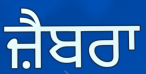
ਜ਼ੈਬਰਾ